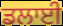
ਡਲਾਈ